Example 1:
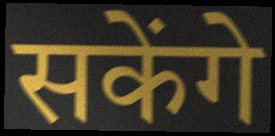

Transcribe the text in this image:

सकेंगे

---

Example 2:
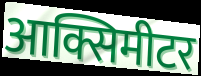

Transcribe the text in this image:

आक्सिमीटर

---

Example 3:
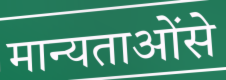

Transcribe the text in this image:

मान्यताओंसे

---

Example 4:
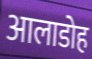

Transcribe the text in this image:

आलाडोह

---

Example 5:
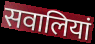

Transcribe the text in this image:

सवालियां